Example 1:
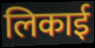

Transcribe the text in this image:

लिकाई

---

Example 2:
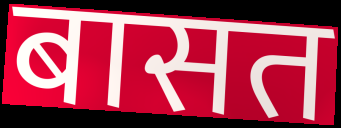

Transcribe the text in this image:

बासत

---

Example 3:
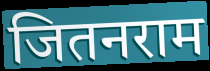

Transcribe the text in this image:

जितनराम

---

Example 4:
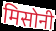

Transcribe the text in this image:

मिसोनी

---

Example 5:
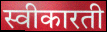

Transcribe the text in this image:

स्वीकारती